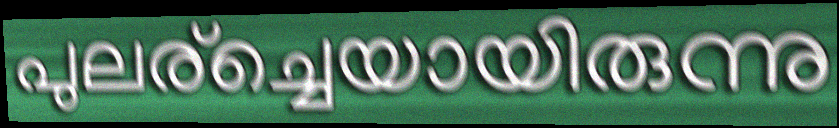
പുലര്ച്ചെയായിരുന്നു